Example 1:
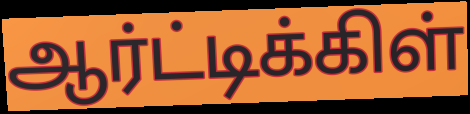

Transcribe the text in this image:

ஆர்ட்டிக்கிள்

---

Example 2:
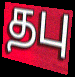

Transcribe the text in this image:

தபு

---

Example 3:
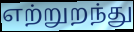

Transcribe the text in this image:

எற்றுறந்து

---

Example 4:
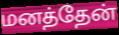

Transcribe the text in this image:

மனத்தேன்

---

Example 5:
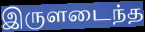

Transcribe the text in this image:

இருளடைந்த